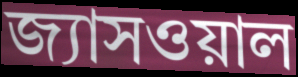
জ্যাসওয়াল